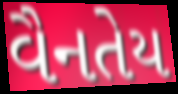
વૈનતેય